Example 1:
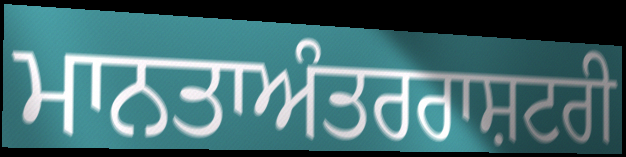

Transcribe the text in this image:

ਮਾਨਤਾਅੰਤਰਰਾਸ਼ਟਰੀ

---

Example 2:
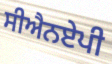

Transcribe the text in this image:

ਸੀਐਨਏਪੀ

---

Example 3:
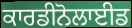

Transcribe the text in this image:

ਕਾਰਡੀਨੋਲਾਈਡ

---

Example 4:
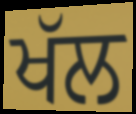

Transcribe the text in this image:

ਖੱਲ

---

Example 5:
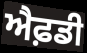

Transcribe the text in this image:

ਐਫ਼ਡੀ